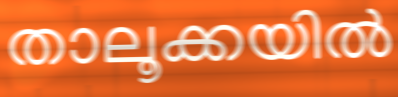
താലൂക്കയിൽ